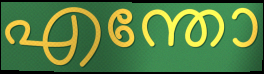
എന്തോ